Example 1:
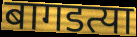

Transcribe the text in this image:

बागडत्या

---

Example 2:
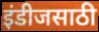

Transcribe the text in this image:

इंडीजसाठी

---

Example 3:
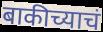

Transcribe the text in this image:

बाकीच्याचं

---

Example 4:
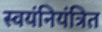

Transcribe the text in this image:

स्वयंनियंत्रित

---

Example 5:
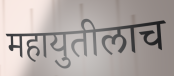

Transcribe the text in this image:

महायुतीलाच